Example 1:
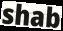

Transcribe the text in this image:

shab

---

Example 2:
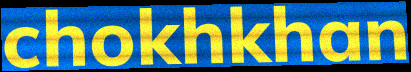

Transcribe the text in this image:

chokhkhan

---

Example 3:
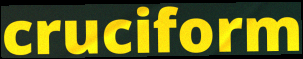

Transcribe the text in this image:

cruciform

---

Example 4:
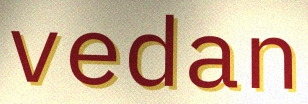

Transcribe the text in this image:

vedan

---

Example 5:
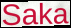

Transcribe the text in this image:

Saka